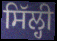
ਸਿੱਲ੍ਹੀ